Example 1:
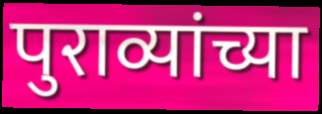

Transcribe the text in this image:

पुराव्यांच्या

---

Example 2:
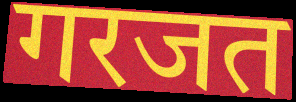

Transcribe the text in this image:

गरजत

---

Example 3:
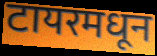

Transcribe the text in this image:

टायरमधून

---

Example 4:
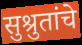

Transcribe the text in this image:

सुश्रुतांचे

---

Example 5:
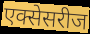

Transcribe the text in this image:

एक्सेसरीज